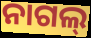
ନାଗଲ୍